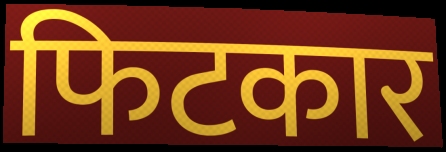
फिटकार